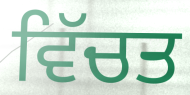
ਵਿੱਚਤ